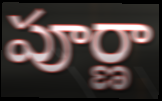
పూర్ణా